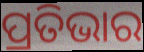
ପ୍ରତିଭାର